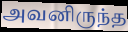
அவனிருந்த